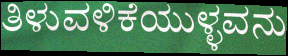
ತಿಳುವಳಿಕೆಯುಳ್ಳವನು